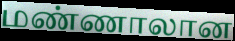
மண்ணாலான